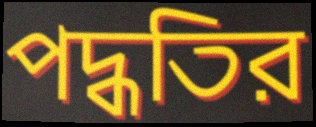
পদ্ধতির